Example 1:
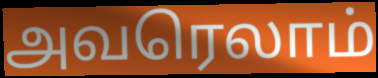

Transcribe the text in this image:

அவரெலாம்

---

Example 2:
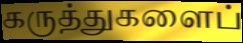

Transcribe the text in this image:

கருத்துகளைப்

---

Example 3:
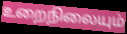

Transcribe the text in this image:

உறைநிலையும்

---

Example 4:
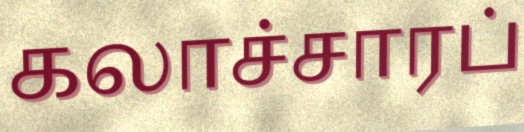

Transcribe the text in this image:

கலாச்சாரப்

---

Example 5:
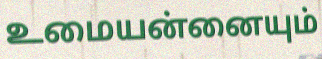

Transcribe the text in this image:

உமையன்னையும்